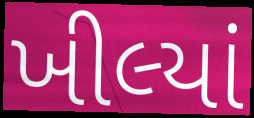
ખીલ્યાં